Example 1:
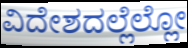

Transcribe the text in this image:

ವಿದೇಶದಲ್ಲೆಲ್ಲೋ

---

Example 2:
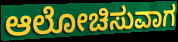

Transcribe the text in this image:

ಆಲೋಚಿಸುವಾಗ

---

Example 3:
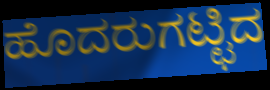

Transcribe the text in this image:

ಹೊದರುಗಟ್ಟಿದ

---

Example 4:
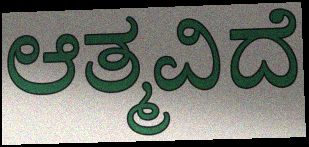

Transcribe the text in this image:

ಆತ್ಮವಿದೆ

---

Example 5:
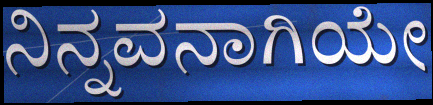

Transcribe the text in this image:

ನಿನ್ನವನಾಗಿಯೇ